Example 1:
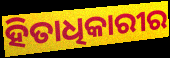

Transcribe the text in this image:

ହିତାଧିକାରୀର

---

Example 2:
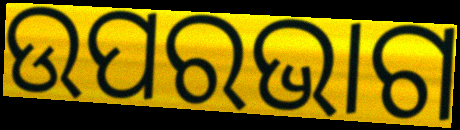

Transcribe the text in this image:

ଉପରଭାଗ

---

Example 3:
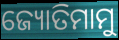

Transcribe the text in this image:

ଜ୍ୟୋତିମାମୁ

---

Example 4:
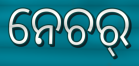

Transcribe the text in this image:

ନେଚର୍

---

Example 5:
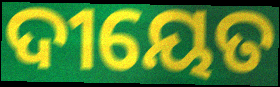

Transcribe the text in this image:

ଦୀୟେତ